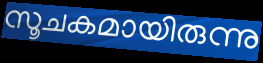
സൂചകമായിരുന്നു